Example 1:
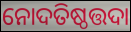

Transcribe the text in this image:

ନୋଦତିଷ୍ଠତ୍ତଦା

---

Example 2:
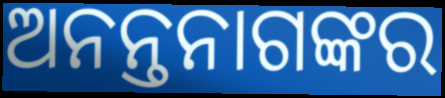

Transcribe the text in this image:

ଅନନ୍ତନାଗଙ୍କର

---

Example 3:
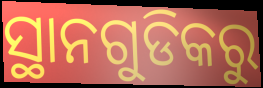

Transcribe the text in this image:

ସ୍ଥାନଗୁଡିକରୁ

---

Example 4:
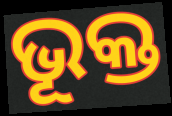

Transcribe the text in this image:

ଭୂକ୍ତ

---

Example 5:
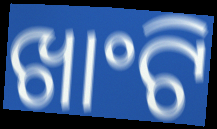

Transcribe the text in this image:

ଖାଂଟି